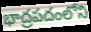
భాద్రపదంలోని